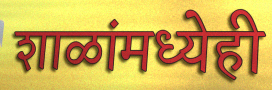
शाळांमध्येही